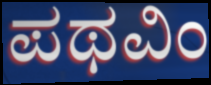
ಪಥವಿಂ